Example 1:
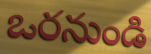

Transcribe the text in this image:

ఒరనుండి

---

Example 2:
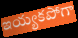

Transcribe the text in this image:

ఇయ్యకపోగా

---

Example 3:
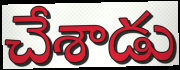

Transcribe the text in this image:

చేశాడు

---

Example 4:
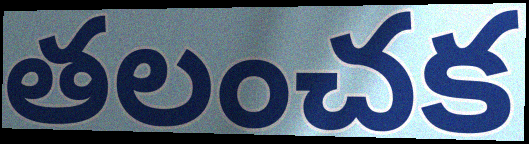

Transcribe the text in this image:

తలంచక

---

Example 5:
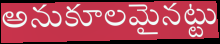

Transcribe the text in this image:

అనుకూలమైనట్టు